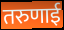
तरुणाई